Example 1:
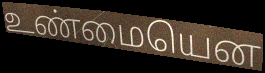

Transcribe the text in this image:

உண்மையென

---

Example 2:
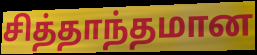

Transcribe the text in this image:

சித்தாந்தமான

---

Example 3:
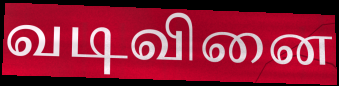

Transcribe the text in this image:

வடிவினை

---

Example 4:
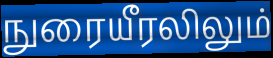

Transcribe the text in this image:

நுரையீரலிலும்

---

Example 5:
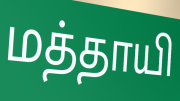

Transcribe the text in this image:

மத்தாயி